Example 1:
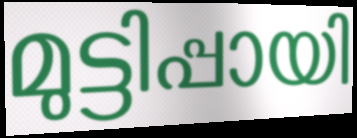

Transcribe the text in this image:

മുട്ടിപ്പായി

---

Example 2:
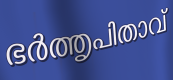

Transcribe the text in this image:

ഭർത്തൃപിതാവ്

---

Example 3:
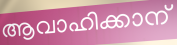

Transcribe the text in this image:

ആവാഹിക്കാന്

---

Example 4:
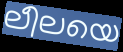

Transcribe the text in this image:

ലീലയെ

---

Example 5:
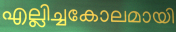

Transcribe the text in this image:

എല്ലിച്ചകോലമായി